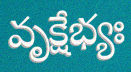
వృక్షేభ్యః